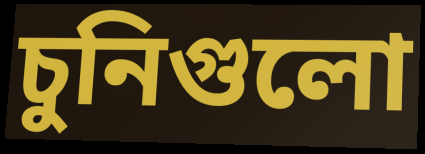
চুনিগুলো